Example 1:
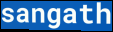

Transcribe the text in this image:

sangath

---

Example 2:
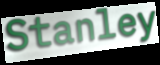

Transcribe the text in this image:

Stanley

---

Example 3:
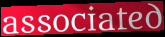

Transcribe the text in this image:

associated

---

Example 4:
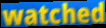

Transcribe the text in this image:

watched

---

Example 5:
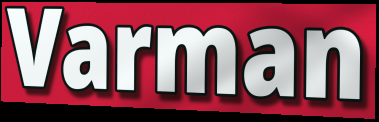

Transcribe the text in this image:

Varman